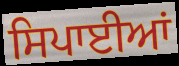
ਸਿਪਾਈਆਂ